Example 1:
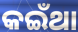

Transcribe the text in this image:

କଇଁଥା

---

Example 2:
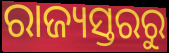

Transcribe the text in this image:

ରାଜ୍ୟସ୍ତରରୁ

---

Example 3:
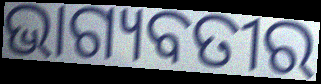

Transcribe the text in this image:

ଭାଗ୍ୟବତୀର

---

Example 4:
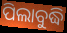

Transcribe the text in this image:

ପିଲାବୁଦ୍ଧି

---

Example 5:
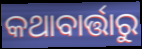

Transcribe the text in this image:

କଥାବାର୍ତ୍ତାରୁ